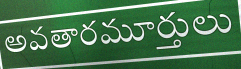
అవతారమూర్తులు